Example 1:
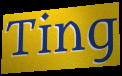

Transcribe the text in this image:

Ting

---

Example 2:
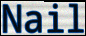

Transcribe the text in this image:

Nail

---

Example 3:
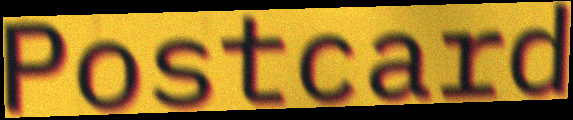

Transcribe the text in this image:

Postcard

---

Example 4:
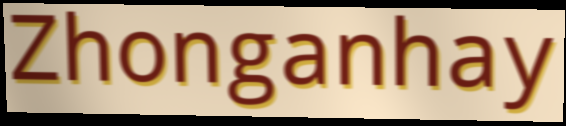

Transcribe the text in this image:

Zhonganhay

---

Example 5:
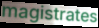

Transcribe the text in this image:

magistrates